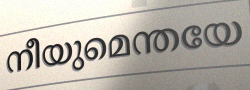
നീയുമെന്തയേ